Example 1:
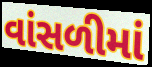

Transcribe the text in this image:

વાંસળીમાં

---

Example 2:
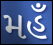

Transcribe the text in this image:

મહઁ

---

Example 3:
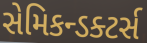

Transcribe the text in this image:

સેમિકન્ડક્ટર્સ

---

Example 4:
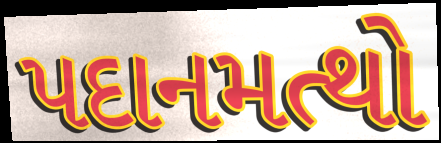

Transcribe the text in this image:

પદાનમત્થો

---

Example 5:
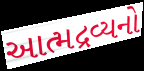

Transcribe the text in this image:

આત્મદ્રવ્યનો